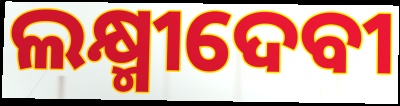
ଲକ୍ଷ୍ମୀଦେବୀ